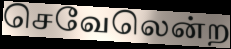
செவேலென்ற